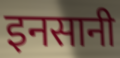
इनसानी